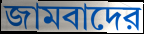
জামবাদের